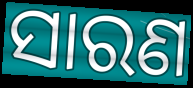
ସାରଣ